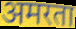
अमरता